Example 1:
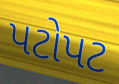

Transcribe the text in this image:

પટોપટ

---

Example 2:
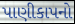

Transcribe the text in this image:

પાણીકાપનો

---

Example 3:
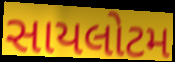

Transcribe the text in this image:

સાયલોટમ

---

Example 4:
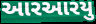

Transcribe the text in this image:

આરઆરયુ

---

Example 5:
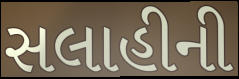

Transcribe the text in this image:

સલાહીની